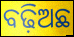
ବଢ଼ିଅଛ